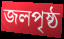
জলপৃষ্ঠ